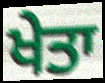
ਖੇਤਾ